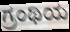
ಗ್ರಂಥಿಯ